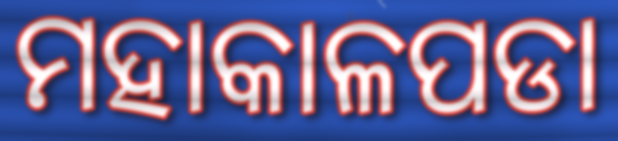
ମହାକାଳପଡା